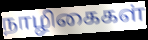
நாழிகைகள்